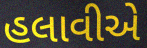
હલાવીએ